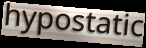
hypostatic